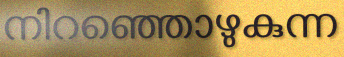
നിറഞ്ഞൊഴുകുന്ന